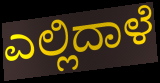
ಎಲ್ಲಿದಾಳೆ